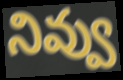
నివ్వు